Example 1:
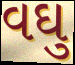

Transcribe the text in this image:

વઘુ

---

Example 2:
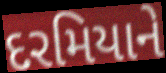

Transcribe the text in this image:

દરમિયાને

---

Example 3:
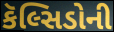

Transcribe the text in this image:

કૅલ્સિડોની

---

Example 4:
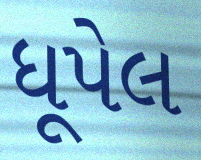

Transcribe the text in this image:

ધૂપેલ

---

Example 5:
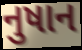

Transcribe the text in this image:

નુષાન